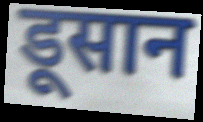
डूसान